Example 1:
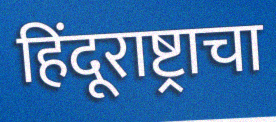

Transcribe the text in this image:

हिंदूराष्ट्राचा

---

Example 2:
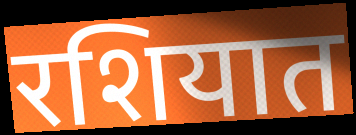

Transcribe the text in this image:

रशियात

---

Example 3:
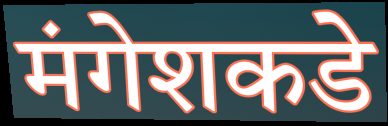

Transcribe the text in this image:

मंगेशकडे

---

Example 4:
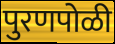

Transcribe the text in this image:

पुरणपोळी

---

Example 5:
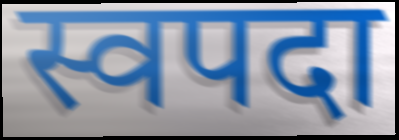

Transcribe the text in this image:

स्वपदा